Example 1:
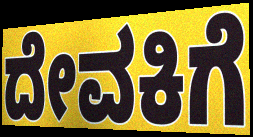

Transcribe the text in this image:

ದೇವಕಿಗೆ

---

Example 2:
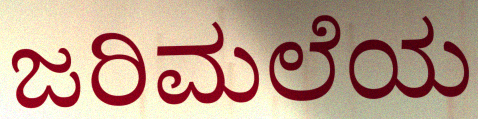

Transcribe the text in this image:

ಜರಿಮಲೆಯ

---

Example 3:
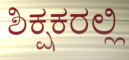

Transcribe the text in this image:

ಶಿಕ್ಷಕರಲ್ಲಿ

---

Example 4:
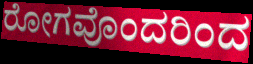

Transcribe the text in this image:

ರೋಗವೊಂದರಿಂದ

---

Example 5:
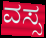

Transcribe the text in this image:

ವಸ್ಸ